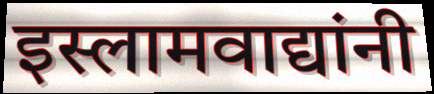
इस्लामवाद्यांनी